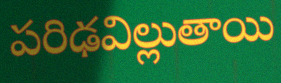
పరిఢవిల్లుతాయి